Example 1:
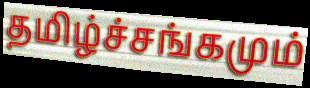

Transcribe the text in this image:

தமிழ்ச்சங்கமும்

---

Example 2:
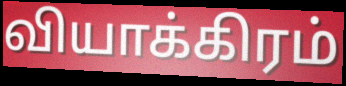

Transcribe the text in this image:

வியாக்கிரம்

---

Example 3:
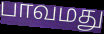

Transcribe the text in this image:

பாவமது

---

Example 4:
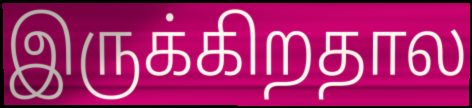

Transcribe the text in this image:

இருக்கிறதால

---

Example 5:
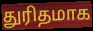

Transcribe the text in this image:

துரிதமாக